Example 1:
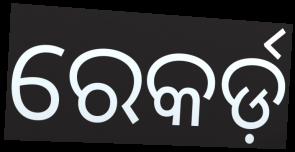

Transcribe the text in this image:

ରେକର୍ଡ଼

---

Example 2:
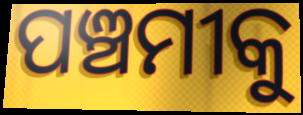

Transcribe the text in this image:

ପଞ୍ଚମୀକୁ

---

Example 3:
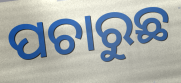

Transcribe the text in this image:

ପଚାରୁଛ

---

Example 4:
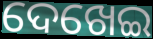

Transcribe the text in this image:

ଦେଖେଇ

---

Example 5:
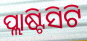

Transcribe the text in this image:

ପ୍ଲାଷ୍ଟିସିଟି